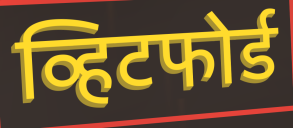
व्हिटफोर्ड